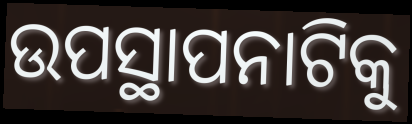
ଉପସ୍ଥାପନାଟିକୁ